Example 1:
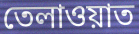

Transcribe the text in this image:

তেলাওয়াত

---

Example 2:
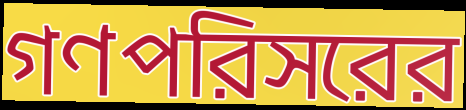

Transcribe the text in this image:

গণপরিসরের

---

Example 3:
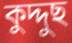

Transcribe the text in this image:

কুদ্দুছ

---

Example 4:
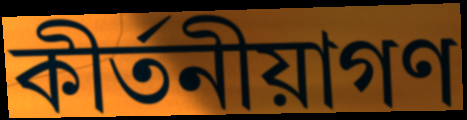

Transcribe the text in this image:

কীর্তনীয়াগণ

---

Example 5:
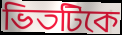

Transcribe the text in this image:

ভিতটিকে